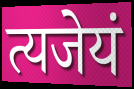
त्यजेयं